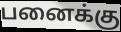
பனைக்கு